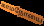
காமநோயை